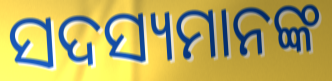
ସଦସ୍ୟମାନଙ୍କ